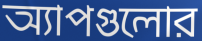
অ্যাপগুলোর